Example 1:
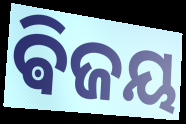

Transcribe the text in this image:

ଵିଜୟ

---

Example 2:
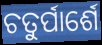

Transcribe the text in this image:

ଚତୁର୍ପାର୍ଶେ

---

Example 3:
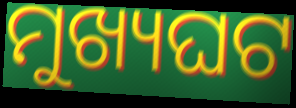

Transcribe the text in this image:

ମୁଖ୍ୟଘଟ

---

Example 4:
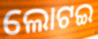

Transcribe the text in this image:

ଲୋଟଇ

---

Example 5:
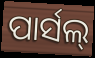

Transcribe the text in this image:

ପାର୍ସଲ୍